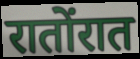
रातोंरात